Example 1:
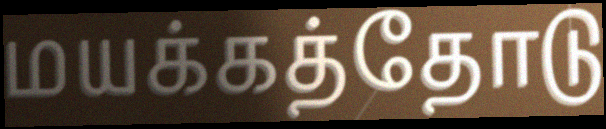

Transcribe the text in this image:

மயக்கத்தோடு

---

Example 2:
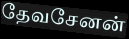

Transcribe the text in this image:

தேவசேனன்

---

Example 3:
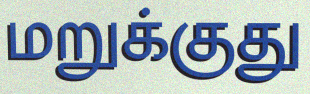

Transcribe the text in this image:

மறுக்குது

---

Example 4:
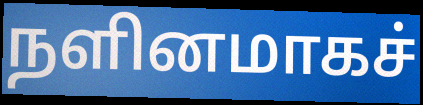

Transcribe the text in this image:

நளினமாகச்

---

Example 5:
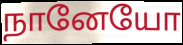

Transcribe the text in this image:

நானேயோ